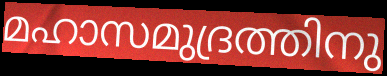
മഹാസമുദ്രത്തിനു